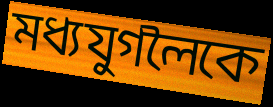
মধ্যযুগলৈকে